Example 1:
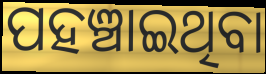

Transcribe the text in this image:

ପହଞ୍ଚାଇଥିବା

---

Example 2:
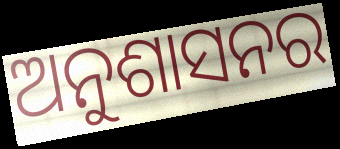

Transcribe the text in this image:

ଅନୁଶାସନର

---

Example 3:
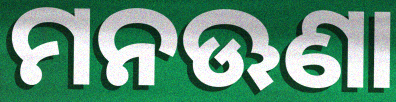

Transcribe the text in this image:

ମନଊଣା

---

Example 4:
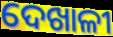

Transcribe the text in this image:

ଦେଖାଳୀ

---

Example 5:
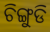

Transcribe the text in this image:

ଚିଙ୍ଗୁଡି